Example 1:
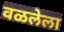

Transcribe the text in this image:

वळलेला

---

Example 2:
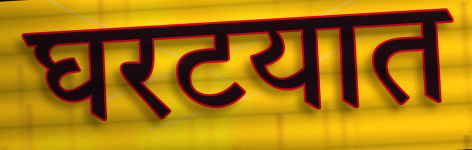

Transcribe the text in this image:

घरटयात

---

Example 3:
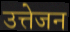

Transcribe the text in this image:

उत्तेजन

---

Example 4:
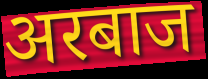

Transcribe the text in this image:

अरबाज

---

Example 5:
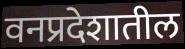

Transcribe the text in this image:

वनप्रदेशातील